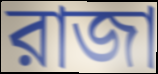
রাজা